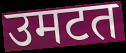
उमटत